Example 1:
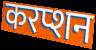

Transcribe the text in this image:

करप्‍शन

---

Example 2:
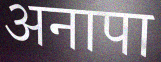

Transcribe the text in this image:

अनापा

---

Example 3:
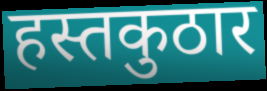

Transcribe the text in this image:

हस्तकुठार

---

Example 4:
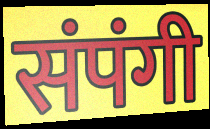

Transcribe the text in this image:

संपंगी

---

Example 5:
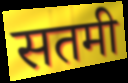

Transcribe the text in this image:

सतमी